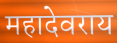
महादेवराय